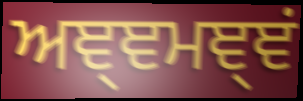
ਅਞ੍ਞਮਞ੍ਞਂ